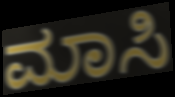
ಮಾಸಿ